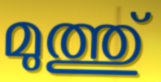
മുത്തു്